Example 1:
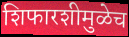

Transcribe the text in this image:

शिफारशीमुळेच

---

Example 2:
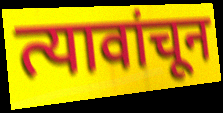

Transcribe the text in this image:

त्यावांचून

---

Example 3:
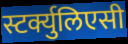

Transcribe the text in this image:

स्टर्क्युलिएसी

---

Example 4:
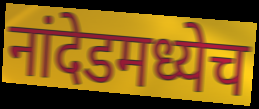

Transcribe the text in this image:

नांदेडमध्येच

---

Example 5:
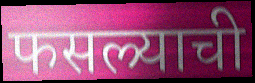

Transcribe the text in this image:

फसल्याची